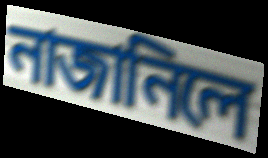
নাজানিলে